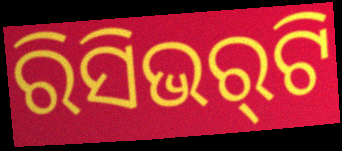
ରିସିଭର୍‌ଟି